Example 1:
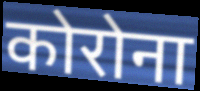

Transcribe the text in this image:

कोरोना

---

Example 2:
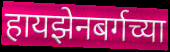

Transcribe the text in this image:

हायझेनबर्गच्या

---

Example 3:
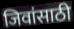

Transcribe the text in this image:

जिवांसाठी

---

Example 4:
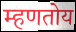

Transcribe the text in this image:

म्हणतोय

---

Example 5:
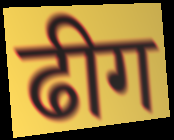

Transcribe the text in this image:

ढीग